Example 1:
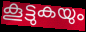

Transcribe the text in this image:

കൂട്ടുകയും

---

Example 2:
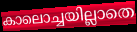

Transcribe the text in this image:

കാലൊച്ചയില്ലാതെ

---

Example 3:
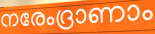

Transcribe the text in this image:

നരേംദ്രാണാം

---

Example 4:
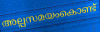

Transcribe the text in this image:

അല്പസമയംകൊണ്ട്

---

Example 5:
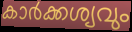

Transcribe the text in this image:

കാർക്കശ്യവും